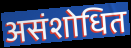
असंशोधित